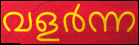
വളർന്ന